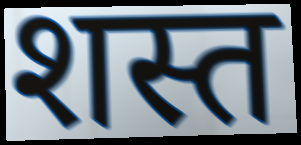
शस्त